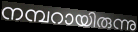
നമ്പറായിരുന്നു